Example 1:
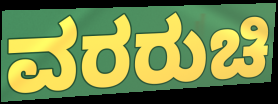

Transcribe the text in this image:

ವರರುಚಿ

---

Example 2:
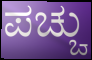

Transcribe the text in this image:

ಪಚ್ಚು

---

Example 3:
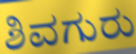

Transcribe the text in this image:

ಶಿವಗುರು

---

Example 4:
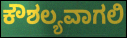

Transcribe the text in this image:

ಕೌಶಲ್ಯವಾಗಲಿ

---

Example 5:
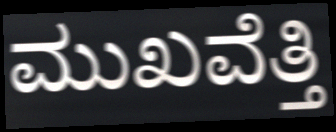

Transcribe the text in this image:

ಮುಖವೆತ್ತಿ